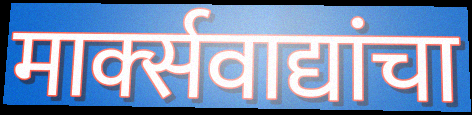
मार्क्‍सवाद्यांचा